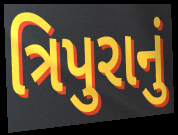
ત્રિપુરાનું